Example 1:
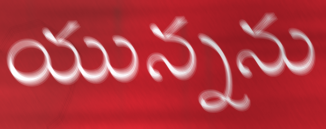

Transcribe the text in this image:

యున్నను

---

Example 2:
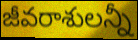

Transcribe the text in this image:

జీవరాశులన్నీ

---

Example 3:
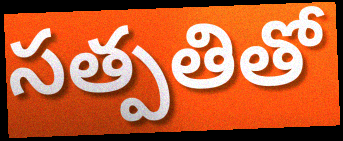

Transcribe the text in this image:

సత్పతితో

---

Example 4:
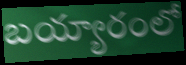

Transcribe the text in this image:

బయ్యారంలో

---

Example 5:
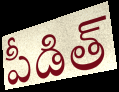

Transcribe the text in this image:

పీడిత్